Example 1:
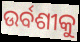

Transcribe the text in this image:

ଉର୍ବଶୀକୁ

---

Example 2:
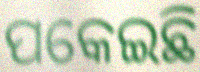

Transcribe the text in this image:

ପକେଇଛି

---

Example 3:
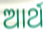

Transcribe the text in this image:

ଆର୍ଥ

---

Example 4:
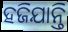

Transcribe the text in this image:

ହଜିଯାନ୍ତି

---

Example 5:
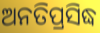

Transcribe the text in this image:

ଅନତିପ୍ରସିଦ୍ଧ